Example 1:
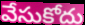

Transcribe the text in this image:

వేసుకోదు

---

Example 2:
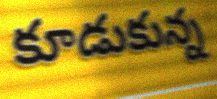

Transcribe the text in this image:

కూడుకున్న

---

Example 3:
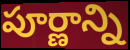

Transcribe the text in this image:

పూర్ణాన్ని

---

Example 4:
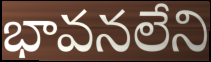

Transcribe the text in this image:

భావనలేని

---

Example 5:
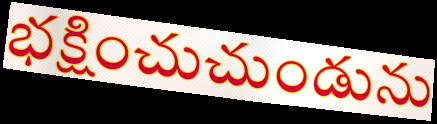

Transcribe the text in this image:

భక్షించుచుండును